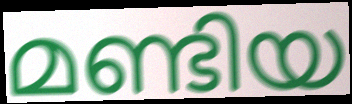
മണ്ടിയ